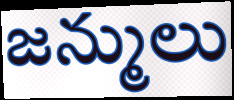
జన్ములు